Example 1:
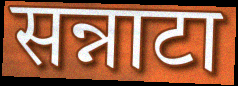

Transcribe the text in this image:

सन्नाटा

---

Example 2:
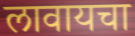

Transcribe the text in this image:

लावायचा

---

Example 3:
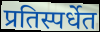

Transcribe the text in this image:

प्रतिस्पर्धेत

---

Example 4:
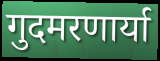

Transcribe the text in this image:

गुदमरणार्या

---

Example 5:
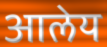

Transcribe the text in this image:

आलेय